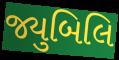
જ્યુબિલિ